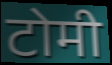
टोमी